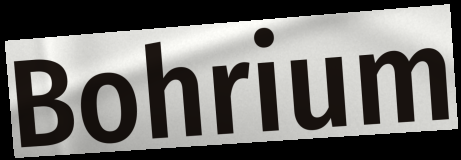
Bohrium